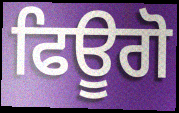
ਫਿਊਗੋ